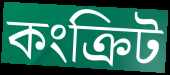
কংক্ৰিট